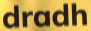
dradh